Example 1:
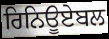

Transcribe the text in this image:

ਰਿਨਿਊਏਬਲ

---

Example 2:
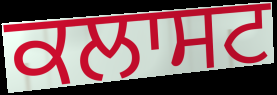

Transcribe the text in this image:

ਕਲਾਸਟ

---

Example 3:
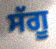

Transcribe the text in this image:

ਸੱਗੂ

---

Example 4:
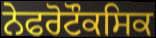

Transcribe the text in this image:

ਨੇਫਰੋਟੌਕਸਿਕ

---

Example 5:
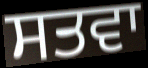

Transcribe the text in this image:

ਸਤਵਾ